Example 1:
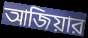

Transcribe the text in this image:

আজিয়ার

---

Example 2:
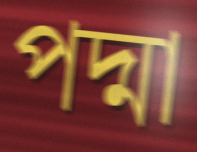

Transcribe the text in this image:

পদ্মা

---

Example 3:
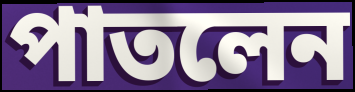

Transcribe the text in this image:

পাতলেন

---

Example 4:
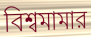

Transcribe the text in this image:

বিশ্বমামার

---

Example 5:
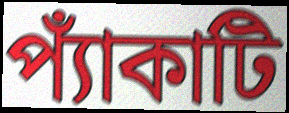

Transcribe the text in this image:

প্যাঁকাটি